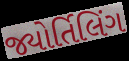
જ્યોર્તિલિંગ